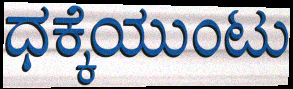
ಧಕ್ಕೆಯುಂಟು